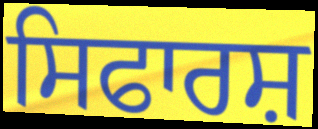
ਸਿਫਾਰਸ਼